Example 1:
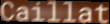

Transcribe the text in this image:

Caillat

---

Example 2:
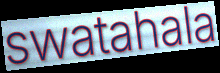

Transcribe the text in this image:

swatahala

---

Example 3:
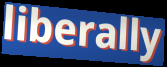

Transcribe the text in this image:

liberally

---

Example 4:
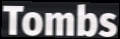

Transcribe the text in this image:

Tombs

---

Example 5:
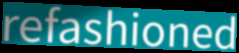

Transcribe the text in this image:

refashioned